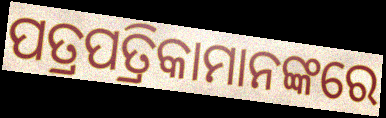
ପତ୍ରପତ୍ରିକାମାନଙ୍କରେ